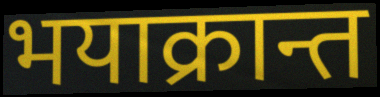
भयाक्रान्त